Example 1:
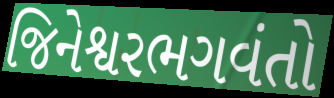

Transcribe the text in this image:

જિનેશ્વરભગવંતો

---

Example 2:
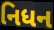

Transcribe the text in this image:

નિધન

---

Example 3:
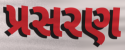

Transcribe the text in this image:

પ્રસરણ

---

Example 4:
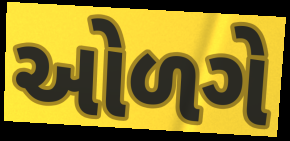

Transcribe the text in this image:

ઓળગે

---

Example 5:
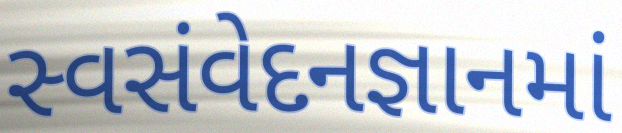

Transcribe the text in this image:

સ્વસંવેદનજ્ઞાનમાં